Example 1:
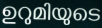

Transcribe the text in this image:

ഉറുമിയുടെ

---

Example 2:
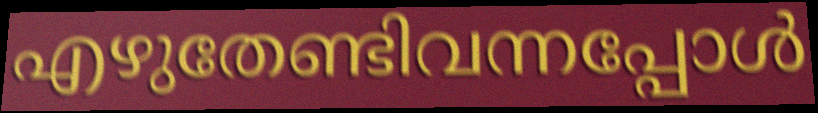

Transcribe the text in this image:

എഴുതേണ്ടിവന്നപ്പോൾ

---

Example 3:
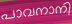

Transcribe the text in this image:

പാവനാനി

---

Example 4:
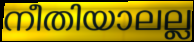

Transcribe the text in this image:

നീതിയാലല്ല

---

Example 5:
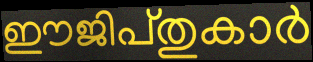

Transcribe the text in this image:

ഈജിപ്തുകാർ